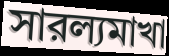
সারল্যমাখা